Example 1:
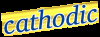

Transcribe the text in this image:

cathodic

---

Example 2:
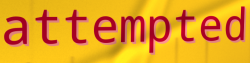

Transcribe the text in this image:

attempted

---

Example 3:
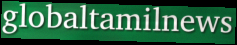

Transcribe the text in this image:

globaltamilnews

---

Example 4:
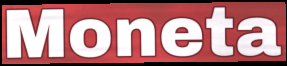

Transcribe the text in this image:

Moneta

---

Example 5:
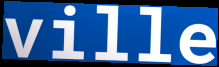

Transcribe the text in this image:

ville